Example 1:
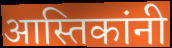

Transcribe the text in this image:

आस्तिकांनी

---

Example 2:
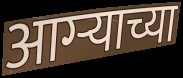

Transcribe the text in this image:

आग्ऱ्याच्या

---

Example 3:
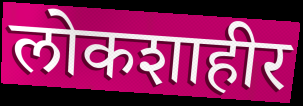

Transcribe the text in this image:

लोकशाहीर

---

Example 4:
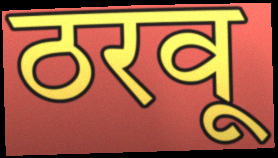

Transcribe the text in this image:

ठरवू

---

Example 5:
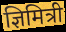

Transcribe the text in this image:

ज्ञिमित्री